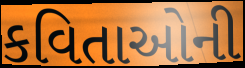
કવિતાઓની